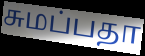
சுமப்பதா